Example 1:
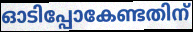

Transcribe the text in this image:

ഓടിപ്പോകേണ്ടതിന്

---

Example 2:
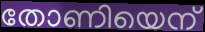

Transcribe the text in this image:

തോണിയെന്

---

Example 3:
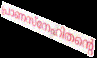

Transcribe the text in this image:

പ്രാണസ്നേഹിതന്റെ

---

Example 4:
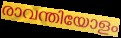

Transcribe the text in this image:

രാവന്തിയോളം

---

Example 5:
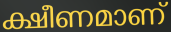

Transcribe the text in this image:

ക്ഷീണമാണ്